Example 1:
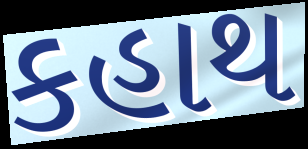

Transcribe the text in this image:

કહાથ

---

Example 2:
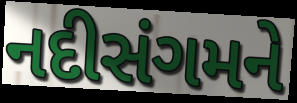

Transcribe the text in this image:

નદીસંગમને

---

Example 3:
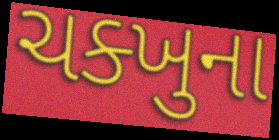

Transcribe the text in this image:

ચક્ખુના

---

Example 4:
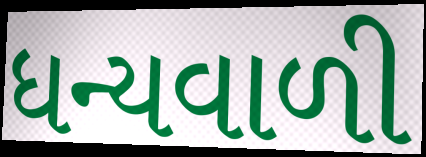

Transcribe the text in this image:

ધન્યવાળી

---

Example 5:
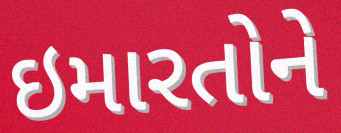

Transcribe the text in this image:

ઇમારતોને